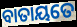
ବାତାୟତେ